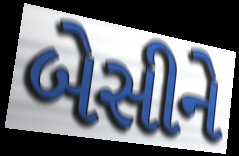
બેસીને